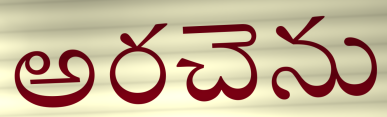
అరచెను